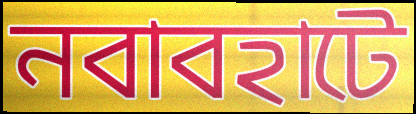
নবাবহাটে